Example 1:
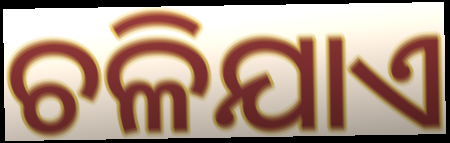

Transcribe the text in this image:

ଚଳିଯାଏ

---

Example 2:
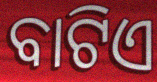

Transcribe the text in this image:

ବାଟିଏ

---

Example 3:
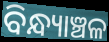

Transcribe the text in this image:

ବିନ୍ଧ୍ୟାଞ୍ଚଳ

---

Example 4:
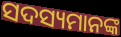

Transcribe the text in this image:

ସଦସ୍ୟମାନଙ୍କ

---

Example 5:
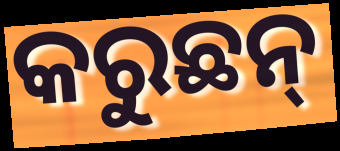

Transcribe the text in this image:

କରୁଛନ୍